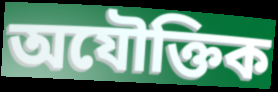
অযৌক্তিক